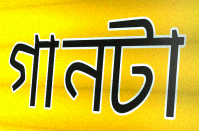
গানটা